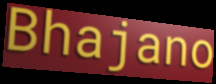
Bhajano